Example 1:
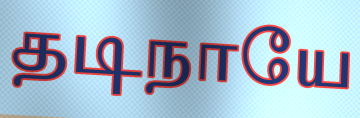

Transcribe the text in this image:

தடிநாயே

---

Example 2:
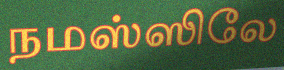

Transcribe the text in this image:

நமஸ்ஸிலே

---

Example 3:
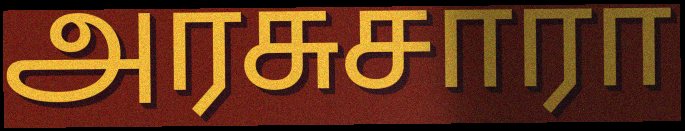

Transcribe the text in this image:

அரசுசாரா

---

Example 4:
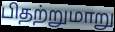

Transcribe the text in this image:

பிதற்றுமாறு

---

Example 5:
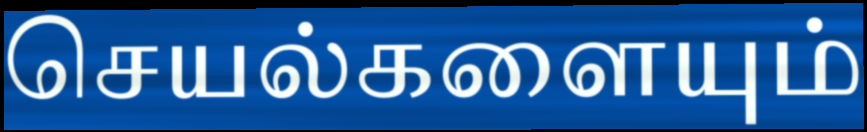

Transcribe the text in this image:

செயல்களையும்